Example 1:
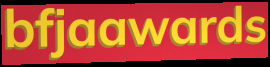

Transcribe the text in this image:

bfjaawards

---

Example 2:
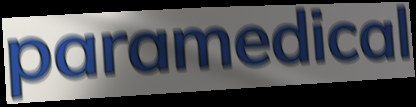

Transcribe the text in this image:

paramedical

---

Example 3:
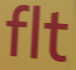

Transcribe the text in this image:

flt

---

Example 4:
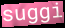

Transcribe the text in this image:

suggi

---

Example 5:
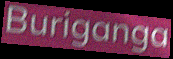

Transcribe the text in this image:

Buriganga